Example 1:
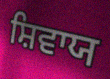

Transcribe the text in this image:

ਸ਼ਿਵਾਯ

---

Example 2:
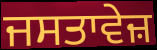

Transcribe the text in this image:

ਜਸਤਾਵੇਜ਼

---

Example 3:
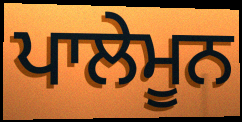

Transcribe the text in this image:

ਪਾਲੇਮੂਨ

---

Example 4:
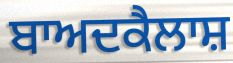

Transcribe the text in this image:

ਬਾਅਦਕੈਲਾਸ਼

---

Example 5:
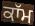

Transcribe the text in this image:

ਕਾੱਮ